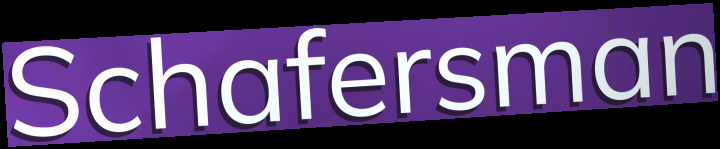
Schafersman